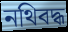
নথিবদ্ধ